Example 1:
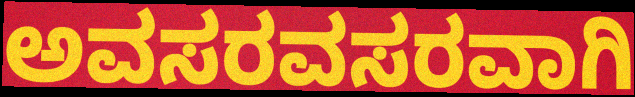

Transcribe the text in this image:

ಅವಸರವಸರವಾಗಿ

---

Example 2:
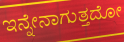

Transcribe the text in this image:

ಇನ್ನೇನಾಗುತ್ತದೋ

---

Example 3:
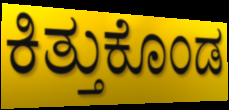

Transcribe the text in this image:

ಕಿತ್ತುಕೊಂಡ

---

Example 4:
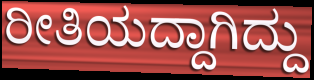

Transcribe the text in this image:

ರೀತಿಯದ್ದಾಗಿದ್ದು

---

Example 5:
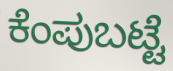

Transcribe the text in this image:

ಕೆಂಪುಬಟ್ಟೆ